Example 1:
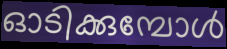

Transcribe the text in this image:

ഓടിക്കുമ്പോൾ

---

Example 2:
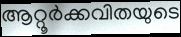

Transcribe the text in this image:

ആറ്റൂർക്കവിതയുടെ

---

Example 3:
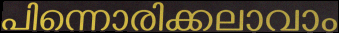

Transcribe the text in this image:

പിന്നൊരിക്കലാവാം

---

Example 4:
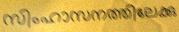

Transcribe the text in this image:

സിംഹാസനത്തിലേക്കു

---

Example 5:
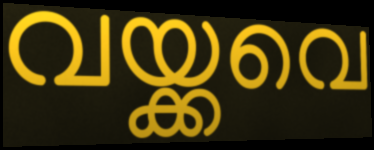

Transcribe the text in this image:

വയ്ക്കവെ